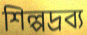
শিল্পদ্রব্য